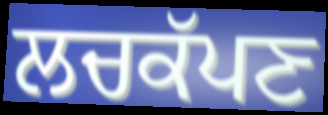
ਲਚਕੱਪਣ